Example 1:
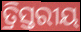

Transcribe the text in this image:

ତ୍ରିସ୍ତରୀୟ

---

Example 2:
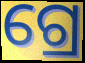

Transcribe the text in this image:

ଗ୍ରେ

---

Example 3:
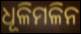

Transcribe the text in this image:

ଧୂଳିମଳିନ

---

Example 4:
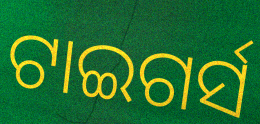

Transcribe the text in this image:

ଟାଇଗର୍ସ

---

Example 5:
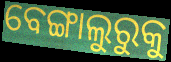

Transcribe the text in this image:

ବେଙ୍ଗାଲୁରୁକୁ